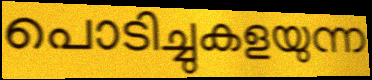
പൊടിച്ചുകളയുന്ന